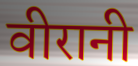
वीरानी